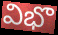
విభొ